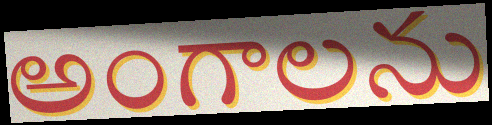
అంగాలను